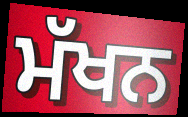
ਮੱਖਨ